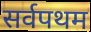
सर्वपथम